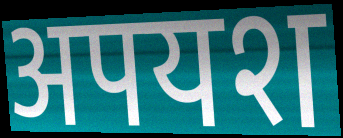
अपयश